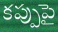
కప్పుపై